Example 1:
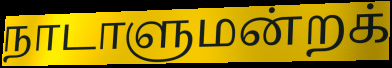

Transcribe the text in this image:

நாடாளுமன்றக்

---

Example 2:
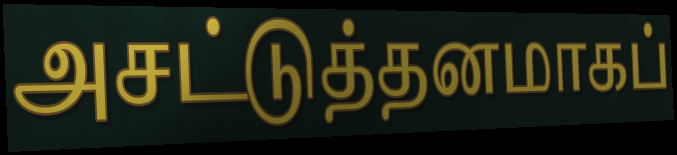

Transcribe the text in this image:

அசட்டுத்தனமாகப்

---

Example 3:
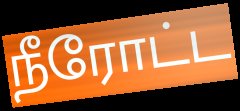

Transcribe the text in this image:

நீரோட்ட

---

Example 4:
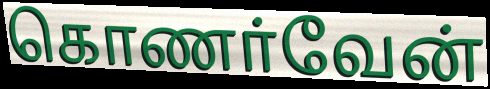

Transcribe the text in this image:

கொணர்வேன்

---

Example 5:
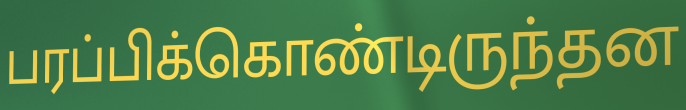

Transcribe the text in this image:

பரப்பிக்கொண்டிருந்தன